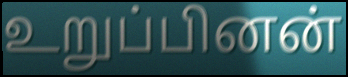
உறுப்பினன்